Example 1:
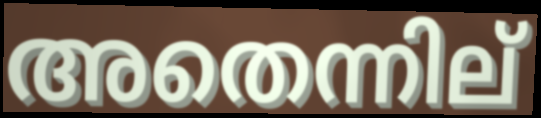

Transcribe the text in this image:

അതെന്നില്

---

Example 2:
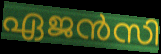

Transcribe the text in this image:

ഏജൻസി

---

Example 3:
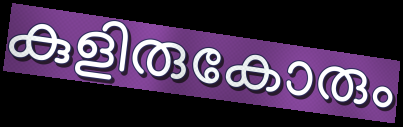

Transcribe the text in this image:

കുളിരുകോരും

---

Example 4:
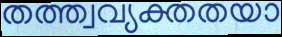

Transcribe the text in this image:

തത്ത്വവ്യക്തതയാ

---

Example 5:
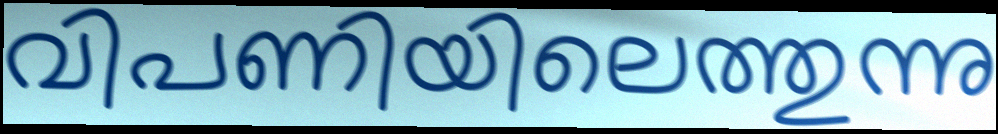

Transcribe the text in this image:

വിപണിയിലെത്തുന്നു